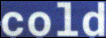
cold